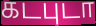
கடபுடா